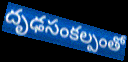
దృఢసంకల్పంతో